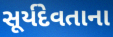
સૂર્યદેવતાના